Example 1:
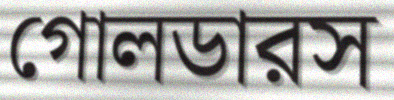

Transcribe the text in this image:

গোলডারস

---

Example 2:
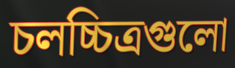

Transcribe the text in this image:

চলচ্চিত্রগুলো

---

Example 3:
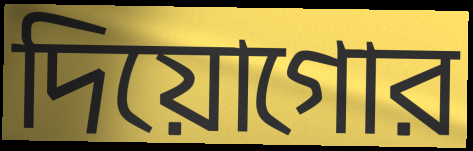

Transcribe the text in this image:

দিয়োগোর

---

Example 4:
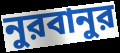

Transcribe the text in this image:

নুরবানুর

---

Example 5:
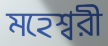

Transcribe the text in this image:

মহেশ্বরী